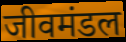
जीवमंडल